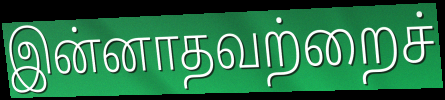
இன்னாதவற்றைச்